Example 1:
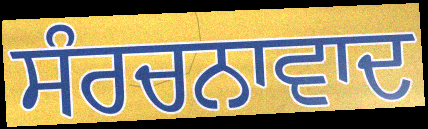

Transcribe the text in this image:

ਸੰਰਚਨਾਵਾਦ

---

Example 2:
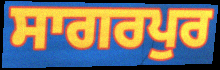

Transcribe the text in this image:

ਸਾਗਰਪੁਰ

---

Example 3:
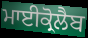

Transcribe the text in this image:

ਮਾਈਕ੍ਰੋਲੈਬ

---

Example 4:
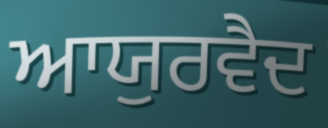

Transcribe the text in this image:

ਆਯੁਰਵੈਦ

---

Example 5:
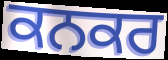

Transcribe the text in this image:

ਕਨਕਰ